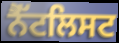
ਨੈੱਟਲਿਸਟ